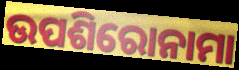
ଉପଶିରୋନାମା